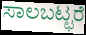
ಸಾಲಬಟ್ಟರೆ